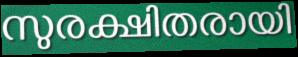
സുരക്ഷിതരായി